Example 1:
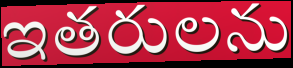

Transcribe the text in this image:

ఇతరులను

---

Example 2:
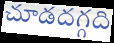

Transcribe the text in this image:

చూడదగ్గది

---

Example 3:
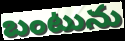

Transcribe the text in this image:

బంటును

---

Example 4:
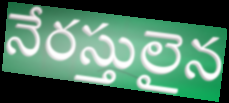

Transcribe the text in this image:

నేరస్తులైన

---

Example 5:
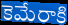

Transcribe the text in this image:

కెమేరాకి